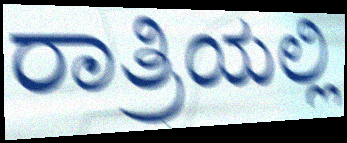
ರಾತ್ರಿಯಲ್ಲಿ